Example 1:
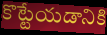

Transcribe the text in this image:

కొట్టేయడానికి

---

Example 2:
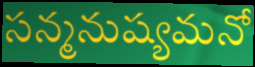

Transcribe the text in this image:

సన్మనుష్యమనో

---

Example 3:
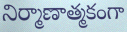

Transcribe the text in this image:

నిర్మాణాత్మకంగా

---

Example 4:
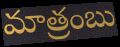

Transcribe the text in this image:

మాత్రంబు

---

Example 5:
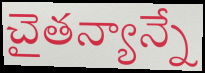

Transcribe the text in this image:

చైతన్యాన్నే